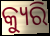
କ୍ୟୁରି